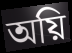
অয়ি